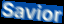
Savior